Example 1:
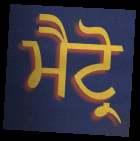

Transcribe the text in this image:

ਮੈਟ੍ਰੋ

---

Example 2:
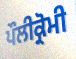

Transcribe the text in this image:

ਪੌਲੀਕ੍ਰੋਮੀ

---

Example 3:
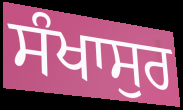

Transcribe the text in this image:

ਸੰਖਾਸੁਰ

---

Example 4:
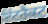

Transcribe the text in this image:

ਇੰਟਰੈਕਟ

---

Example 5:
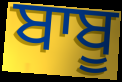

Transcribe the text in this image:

ਬਾਬੂ